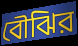
বৌঝির